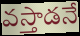
వస్తాడనే